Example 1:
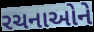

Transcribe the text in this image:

રચનાઓને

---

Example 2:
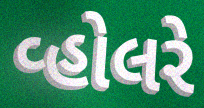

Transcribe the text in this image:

વ્હોલરે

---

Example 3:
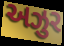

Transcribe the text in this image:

અઝુર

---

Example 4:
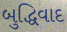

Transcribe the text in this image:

બુદ્ધિવાદ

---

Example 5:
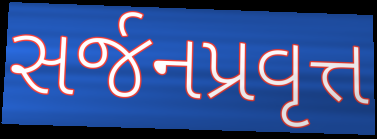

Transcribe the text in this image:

સર્જનપ્રવૃત્ત